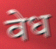
वेध